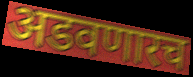
अडवणारच